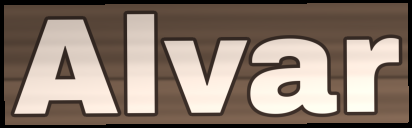
Alvar